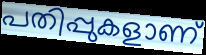
പതിപ്പുകളാണ്